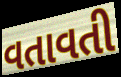
વતાવતી